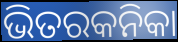
ଭିତରକନିକା